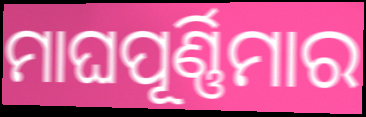
ମାଘପୂର୍ଣ୍ଣିମାର